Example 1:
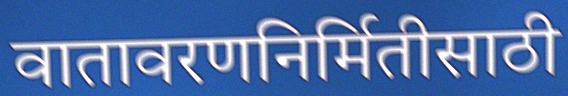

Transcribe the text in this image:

वातावरणनिर्मितीसाठी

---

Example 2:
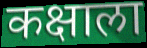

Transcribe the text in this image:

कक्षाला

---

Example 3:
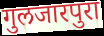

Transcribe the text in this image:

गुलजारपुरा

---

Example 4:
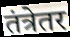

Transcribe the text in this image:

तंत्रेतर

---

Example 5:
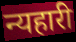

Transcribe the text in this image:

न्यहारी